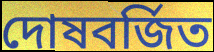
দোষবর্জিত